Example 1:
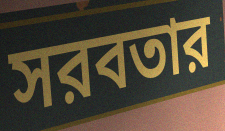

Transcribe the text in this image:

সরবতার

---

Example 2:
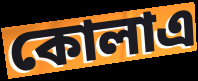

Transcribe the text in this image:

কোলাএ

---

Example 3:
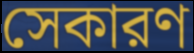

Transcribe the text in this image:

সেকারণ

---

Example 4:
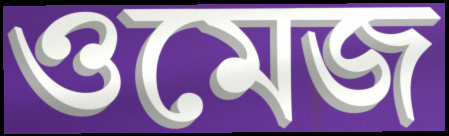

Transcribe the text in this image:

ওমেজ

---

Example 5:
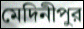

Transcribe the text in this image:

মেদিনীপুর